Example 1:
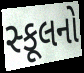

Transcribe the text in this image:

સ્કૂલનો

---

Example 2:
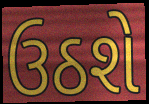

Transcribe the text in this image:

ઉઠશે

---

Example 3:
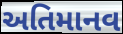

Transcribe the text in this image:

અતિમાનવ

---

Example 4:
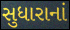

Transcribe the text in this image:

સુધારાનાં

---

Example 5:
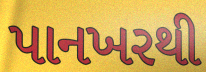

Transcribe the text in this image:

પાનખરથી